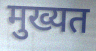
मुख्यत